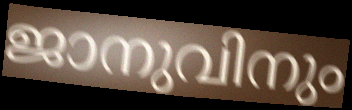
ജാനുവിനും